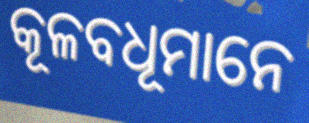
କୂଳବଧୂମାନେ